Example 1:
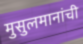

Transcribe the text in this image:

मुसुलमानांची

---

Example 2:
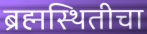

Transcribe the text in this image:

ब्रह्मस्थितीचा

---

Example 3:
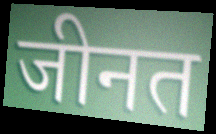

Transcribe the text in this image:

जीनत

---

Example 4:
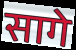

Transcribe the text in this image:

सागे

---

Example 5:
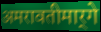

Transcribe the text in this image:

अमरावतीमार्गे